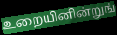
உறையினின்றுங்